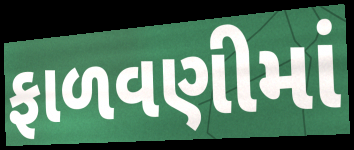
ફાળવણીમાં